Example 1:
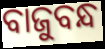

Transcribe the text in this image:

ବାଜୁବନ୍ଧ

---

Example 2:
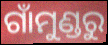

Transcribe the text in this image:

ଗାଁମୁଣ୍ଡରୁ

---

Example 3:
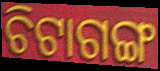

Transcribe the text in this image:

ଚିଟାଗଙ୍ଗ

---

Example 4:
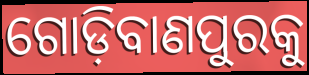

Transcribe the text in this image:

ଗୋଡ଼ିବାଣପୁରକୁ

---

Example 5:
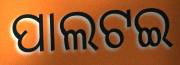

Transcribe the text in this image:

ପାଲଟଇ